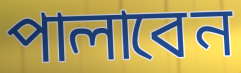
পালাবেন